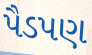
પૈડપણ